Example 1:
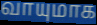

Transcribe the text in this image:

வாயுமாக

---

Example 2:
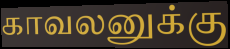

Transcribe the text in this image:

காவலனுக்கு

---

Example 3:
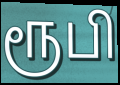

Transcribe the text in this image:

ரூபி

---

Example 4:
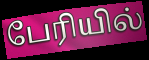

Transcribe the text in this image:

பேரியில்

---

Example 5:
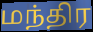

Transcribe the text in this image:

மந்திர